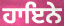
ਹਾਇਨੇ